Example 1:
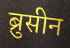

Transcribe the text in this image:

ब्रुसीन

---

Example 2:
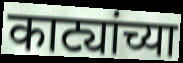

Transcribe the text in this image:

काट्यांच्या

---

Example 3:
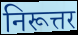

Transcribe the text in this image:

निरूत्तर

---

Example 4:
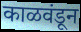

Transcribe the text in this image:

काळवंडून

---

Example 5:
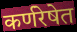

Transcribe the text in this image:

कर्णरेषेत